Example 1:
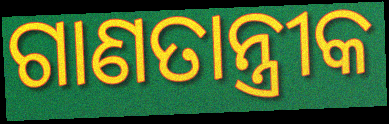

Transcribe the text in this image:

ଗାଣତାନ୍ତ୍ରୀକ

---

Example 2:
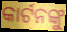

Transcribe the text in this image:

କାର୍ଟନଙ୍କୁ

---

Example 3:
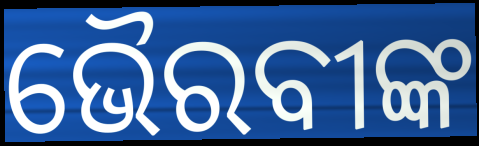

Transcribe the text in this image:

ଭୈରବୀଙ୍କ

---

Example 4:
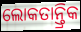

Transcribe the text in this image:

ଲୋକତାନ୍ତ୍ରିକ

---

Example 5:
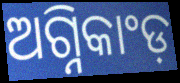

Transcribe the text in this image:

ଅଗ୍ନିକାଂଡ଼